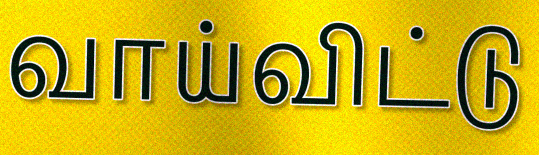
வாய்விட்டு